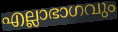
എല്ലാഭാഗവും